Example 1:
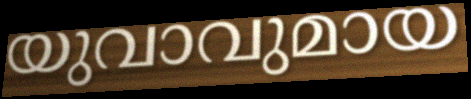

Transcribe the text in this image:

യുവാവുമായ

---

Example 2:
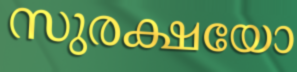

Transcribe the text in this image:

സുരക്ഷയോ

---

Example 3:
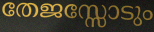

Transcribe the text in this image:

തേജസ്സോടും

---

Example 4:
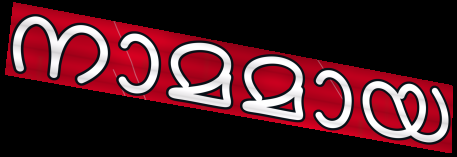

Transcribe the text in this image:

നാമമായ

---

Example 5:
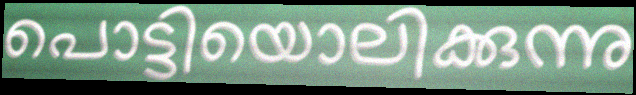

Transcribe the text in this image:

പൊട്ടിയൊലിക്കുന്നു